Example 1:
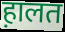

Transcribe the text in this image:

ह़ालत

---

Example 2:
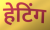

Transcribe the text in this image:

हेटिंग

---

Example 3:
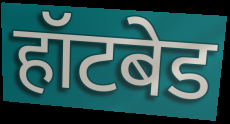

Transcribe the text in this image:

हॉटबेड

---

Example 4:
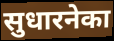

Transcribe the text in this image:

सुधारनेका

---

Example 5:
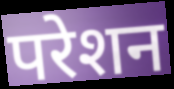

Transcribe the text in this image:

परेशन